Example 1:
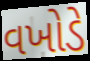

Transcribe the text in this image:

વખોડે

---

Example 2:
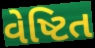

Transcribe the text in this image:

વેષ્ટિત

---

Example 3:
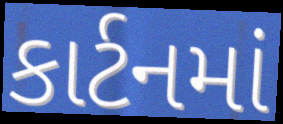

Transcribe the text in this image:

કાર્ટનમાં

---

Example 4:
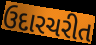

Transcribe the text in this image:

ઉદારચરીત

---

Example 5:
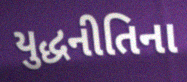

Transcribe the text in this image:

યુદ્ધનીતિના